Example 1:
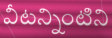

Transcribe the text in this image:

వీటన్నింటిని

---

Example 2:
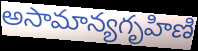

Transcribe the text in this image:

అసామాన్యగృహిణి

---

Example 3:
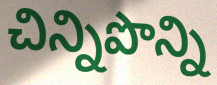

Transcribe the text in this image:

చిన్నిపొన్ని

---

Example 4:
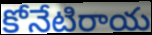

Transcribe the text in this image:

కోనేటిరాయ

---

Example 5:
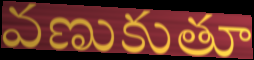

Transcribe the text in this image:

వణుకుతూ